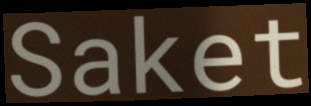
Saket